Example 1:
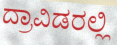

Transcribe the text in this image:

ದ್ರಾವಿಡರಲ್ಲಿ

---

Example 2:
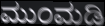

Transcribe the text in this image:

ಮುಂಮಡಿ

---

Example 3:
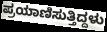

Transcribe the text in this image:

ಪ್ರಯಾಣಿಸುತ್ತಿದ್ದಳು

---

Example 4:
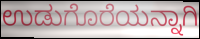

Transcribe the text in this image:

ಉಡುಗೊರೆಯನ್ನಾಗಿ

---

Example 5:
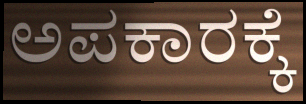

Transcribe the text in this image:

ಅಪಕಾರಕ್ಕೆ